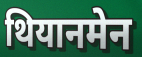
थियानमेन